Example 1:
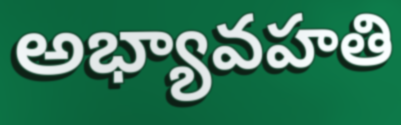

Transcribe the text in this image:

అభ్యావహతి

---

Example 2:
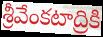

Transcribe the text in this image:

శ్రీవేంకటాద్రికి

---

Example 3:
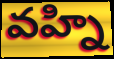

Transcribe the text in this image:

వహ్ని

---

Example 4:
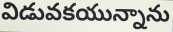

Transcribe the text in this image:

విడువకయున్నాను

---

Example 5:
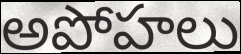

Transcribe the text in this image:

అపోహలు